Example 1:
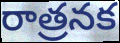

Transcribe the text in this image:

రాత్రనక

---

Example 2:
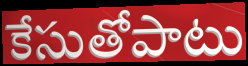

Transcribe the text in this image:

కేసుతోపాటు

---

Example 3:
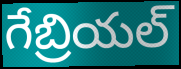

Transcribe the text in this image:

గేబ్రియల్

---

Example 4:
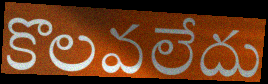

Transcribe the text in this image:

కొలవలేదు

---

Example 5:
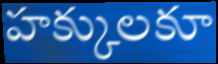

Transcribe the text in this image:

హక్కులకూ